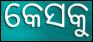
କେସକୁ